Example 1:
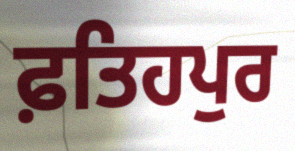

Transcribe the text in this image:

ਫ਼ਤਿਹਪੁਰ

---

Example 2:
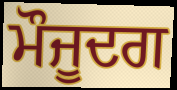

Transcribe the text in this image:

ਮੌਜੂਦਗ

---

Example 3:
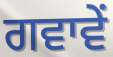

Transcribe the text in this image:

ਗਵਾਵੇਂ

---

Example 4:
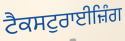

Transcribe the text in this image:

ਟੈਕਸਟੁਰਾਈਜ਼ਿੰਗ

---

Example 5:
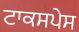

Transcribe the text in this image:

ਟਾਕਸਪੇਸ